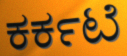
ಕರ್ಕಟೆ